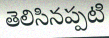
తెలిసినప్పటి